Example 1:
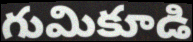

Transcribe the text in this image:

గుమికూడి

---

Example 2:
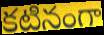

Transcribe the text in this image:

కటినంగా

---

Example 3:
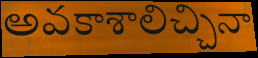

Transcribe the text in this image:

అవకాశాలిచ్చినా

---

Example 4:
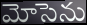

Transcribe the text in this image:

మోసెను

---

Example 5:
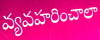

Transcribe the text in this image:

వ్యవహరించాలా